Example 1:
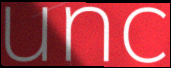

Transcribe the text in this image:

unc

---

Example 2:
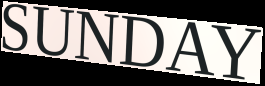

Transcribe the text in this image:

SUNDAY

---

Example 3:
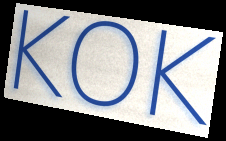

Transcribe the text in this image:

KOK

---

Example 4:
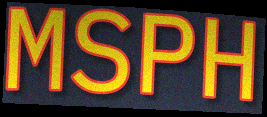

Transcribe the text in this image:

MSPH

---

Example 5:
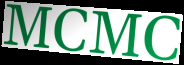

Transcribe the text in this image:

MCMC